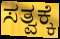
ಸತ್ವಕ್ಕೆ